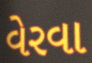
વેરવા